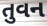
તુવન